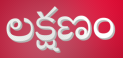
లక్షణం